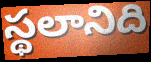
స్థలానిది